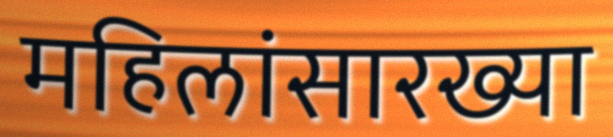
महिलांसारख्या